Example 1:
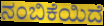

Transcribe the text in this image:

ನಂಬಿಕೆಯಿದೆ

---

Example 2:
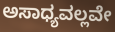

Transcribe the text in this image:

ಅಸಾಧ್ಯವಲ್ಲವೇ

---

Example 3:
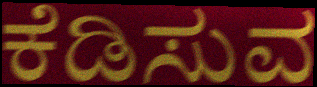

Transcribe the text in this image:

ಕೆಡಿಸುವ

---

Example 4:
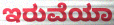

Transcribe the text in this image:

ಇರುವೆಯಾ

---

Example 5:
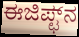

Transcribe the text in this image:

ಈಜಿಪ್ಟ್‌ನ